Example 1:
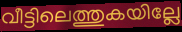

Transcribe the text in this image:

വീട്ടിലെത്തുകയില്ലേ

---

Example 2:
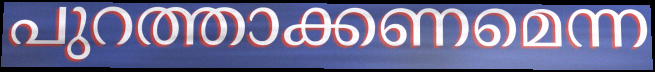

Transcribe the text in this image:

പുറത്താക്കണമെന്ന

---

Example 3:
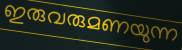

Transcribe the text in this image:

ഇരുവരുമണയുന്ന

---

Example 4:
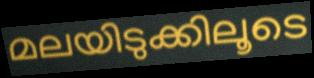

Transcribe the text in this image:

മലയിടുക്കിലൂടെ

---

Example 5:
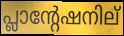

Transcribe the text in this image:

പ്ലാന്റേഷനില്